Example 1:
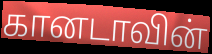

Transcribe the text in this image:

கானடாவின்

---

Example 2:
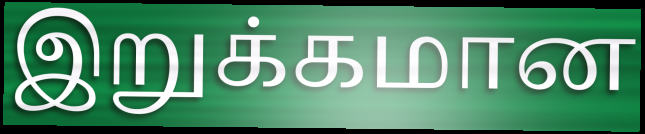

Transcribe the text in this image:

இறுக்கமான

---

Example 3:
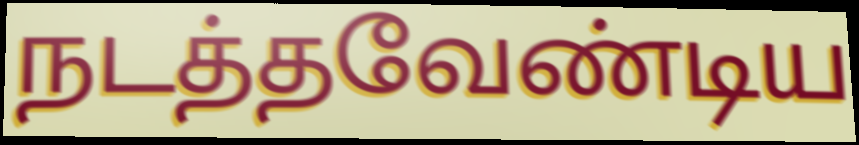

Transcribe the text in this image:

நடத்தவேண்டிய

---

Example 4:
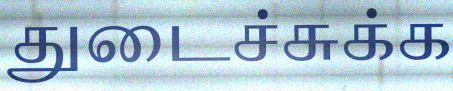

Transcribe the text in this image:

துடைச்சுக்க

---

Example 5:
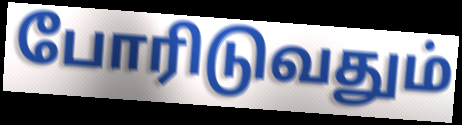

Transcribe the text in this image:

போரிடுவதும்